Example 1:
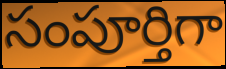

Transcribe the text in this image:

సంపూర్తిగా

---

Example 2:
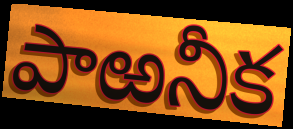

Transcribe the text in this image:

పాఱనీక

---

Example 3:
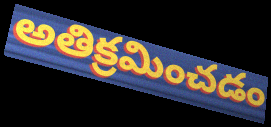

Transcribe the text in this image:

అతిక్రమించడం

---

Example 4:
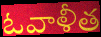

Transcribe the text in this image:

ఓవాళీత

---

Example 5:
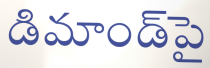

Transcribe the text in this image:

డిమాండ్‌పై